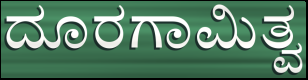
ದೂರಗಾಮಿತ್ವ